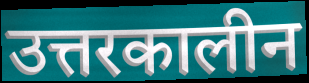
उत्तरकालीन